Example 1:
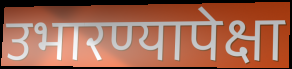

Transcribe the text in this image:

उभारण्यापेक्षा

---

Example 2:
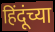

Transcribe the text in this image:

हिंदूंच्या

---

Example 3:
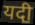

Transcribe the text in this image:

यदी॒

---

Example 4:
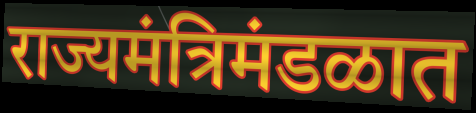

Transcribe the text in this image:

राज्यमंत्रिमंडळात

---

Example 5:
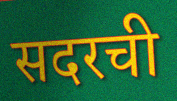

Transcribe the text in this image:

सदरची